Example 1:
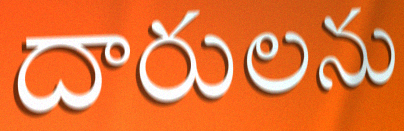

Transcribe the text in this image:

దారులను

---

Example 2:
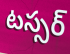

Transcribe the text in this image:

టస్సర్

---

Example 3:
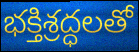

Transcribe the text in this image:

భక్తిశ్రద్ధలతో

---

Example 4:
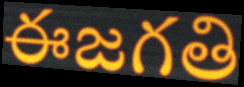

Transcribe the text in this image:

ఈజగతి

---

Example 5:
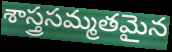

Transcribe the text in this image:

శాస్త్రసమ్మతమైన